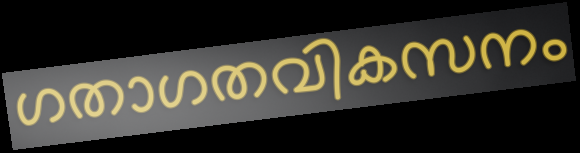
ഗതാഗതവികസനം